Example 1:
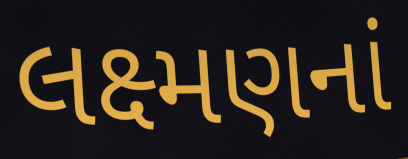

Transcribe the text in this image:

લક્ષ્મણનાં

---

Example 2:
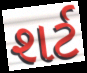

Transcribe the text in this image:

શર્ટ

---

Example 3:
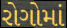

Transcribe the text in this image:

રોગોમાં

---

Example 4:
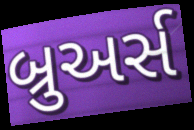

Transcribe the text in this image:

બ્રુઅર્સ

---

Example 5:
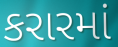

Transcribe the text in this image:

કરારમાં